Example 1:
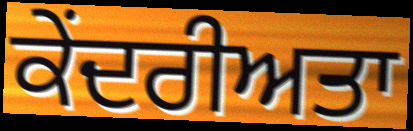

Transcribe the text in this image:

ਕੇਂਦਰੀਅਤਾ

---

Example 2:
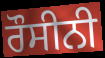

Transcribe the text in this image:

ਰੌਸੀਨੀ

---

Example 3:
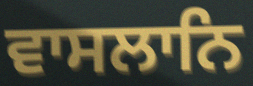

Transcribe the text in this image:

ਵਾਸਲਾਨਿ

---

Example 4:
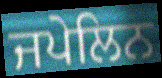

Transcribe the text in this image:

ਜਪੇਲਿਨ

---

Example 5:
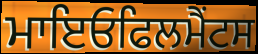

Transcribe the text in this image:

ਮਾਇਓਫਿਲਮੈਂਟਸ